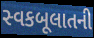
સ્વકબૂલાતની